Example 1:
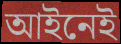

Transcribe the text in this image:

আইনেই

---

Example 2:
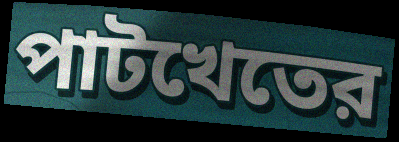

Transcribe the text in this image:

পাটখেতের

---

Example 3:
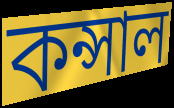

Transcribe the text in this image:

কন্সাল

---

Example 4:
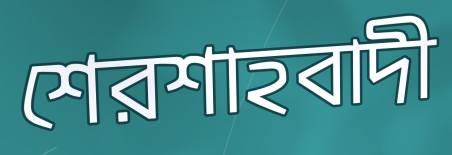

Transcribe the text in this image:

শেরশাহবাদী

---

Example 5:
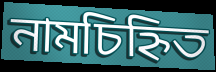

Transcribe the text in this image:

নামচিহ্নিত